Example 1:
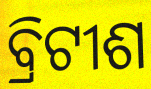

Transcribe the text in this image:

ବ୍ରିଟୀଶ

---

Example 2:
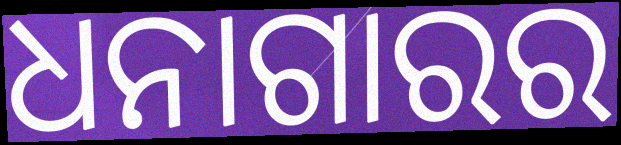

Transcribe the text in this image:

ଧନାଗାରର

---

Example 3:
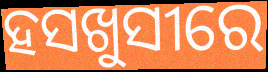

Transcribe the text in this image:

ହସଖୁସୀରେ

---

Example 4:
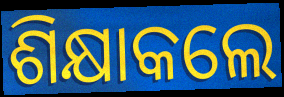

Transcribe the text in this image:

ଶିକ୍ଷାକଲେ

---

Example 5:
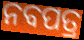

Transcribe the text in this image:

ନବପତ୍ର